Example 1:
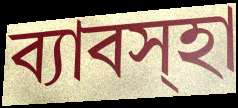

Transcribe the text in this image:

ব্যাবস্হা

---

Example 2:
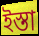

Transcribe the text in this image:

ইস্তা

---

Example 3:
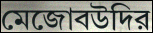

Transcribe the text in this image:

মেজোবউদির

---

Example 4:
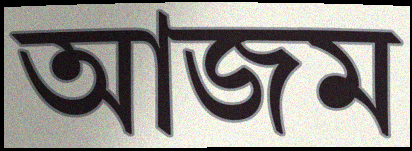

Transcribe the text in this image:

আজম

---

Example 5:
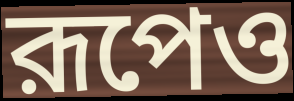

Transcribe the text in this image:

রূপেও